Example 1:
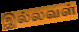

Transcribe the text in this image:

இல்லவள்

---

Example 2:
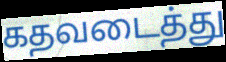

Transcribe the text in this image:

கதவடைத்து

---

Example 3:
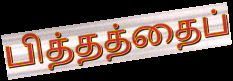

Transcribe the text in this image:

பித்தத்தைப்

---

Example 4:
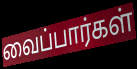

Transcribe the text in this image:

வைப்பார்கள்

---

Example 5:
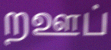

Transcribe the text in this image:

றஊப்